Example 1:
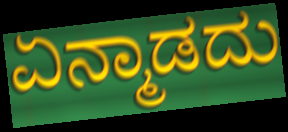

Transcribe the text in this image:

ಏನ್ಮಾಡದು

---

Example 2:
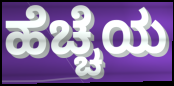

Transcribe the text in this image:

ಹೆಚ್ಚೆಯ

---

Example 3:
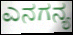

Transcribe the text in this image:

ಎನಗನ್ಯ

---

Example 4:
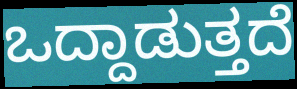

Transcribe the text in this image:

ಒದ್ದಾಡುತ್ತದೆ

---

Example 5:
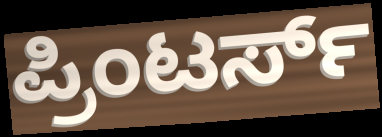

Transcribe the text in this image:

ಪ್ರಿಂಟರ್ಸ್